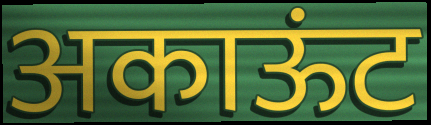
अकाऊंट